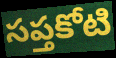
సప్తకోటి